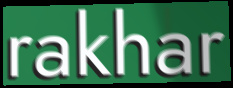
rakhar